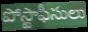
పోస్టాఫీసులు